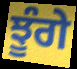
ਝੂੰਗੇ